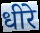
धीरे